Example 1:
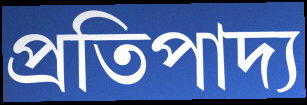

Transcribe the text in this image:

প্রতিপাদ্য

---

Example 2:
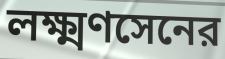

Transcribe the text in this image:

লক্ষ্মণসেনের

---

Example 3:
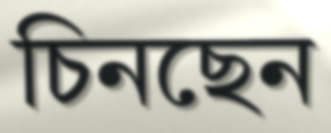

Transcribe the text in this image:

চিনছেন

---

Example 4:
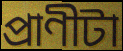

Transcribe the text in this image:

প্রাণীটা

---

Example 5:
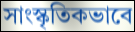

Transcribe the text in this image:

সাংস্কৃতিকভাবে